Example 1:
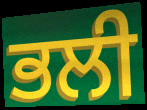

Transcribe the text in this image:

ਭਲੀ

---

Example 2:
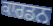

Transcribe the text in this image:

ਕਾਰਡਨ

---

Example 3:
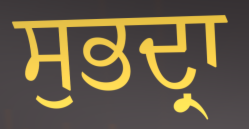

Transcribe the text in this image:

ਸੁਭਦ੍ਰਾ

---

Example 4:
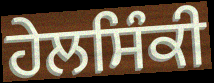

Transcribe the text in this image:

ਹੇਲਸਿੰਕੀ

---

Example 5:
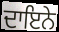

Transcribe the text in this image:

ਦਾਇਨੇ